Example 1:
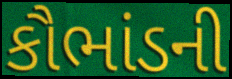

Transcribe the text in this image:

કૌભાંડની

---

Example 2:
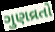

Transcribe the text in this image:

ગુણવ્રતો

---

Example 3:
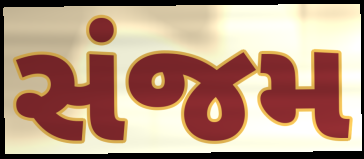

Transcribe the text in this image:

સંજમ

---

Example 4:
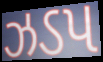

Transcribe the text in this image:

ઝડપ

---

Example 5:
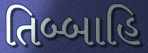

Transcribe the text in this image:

તિબ્બાહિ